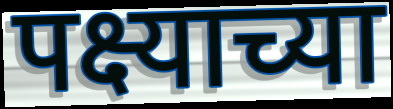
पक्ष्याच्या